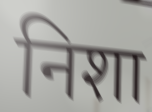
निशा